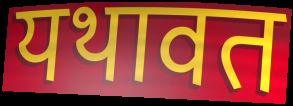
यथावत